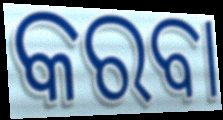
କରବା